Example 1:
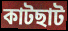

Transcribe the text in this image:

কাটছাট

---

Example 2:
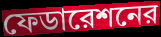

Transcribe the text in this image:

ফেডারেশনের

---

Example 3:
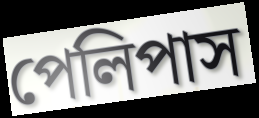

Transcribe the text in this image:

পেলিপাস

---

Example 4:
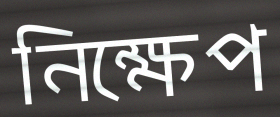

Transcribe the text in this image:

নিক্ষেপ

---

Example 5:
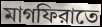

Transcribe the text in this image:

মাগফিরাতে